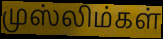
முஸ்லிம்கள்